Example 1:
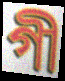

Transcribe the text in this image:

গী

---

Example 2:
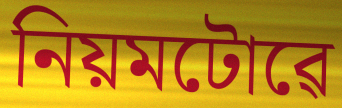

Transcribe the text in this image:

নিয়মটোৱে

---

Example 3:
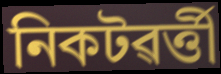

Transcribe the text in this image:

নিকটৱৰ্ত্তী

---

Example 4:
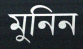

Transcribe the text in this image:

মুনিন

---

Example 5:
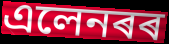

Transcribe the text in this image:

এলেনৰৰ